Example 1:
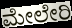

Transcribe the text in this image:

ಮೇಲೇರಿ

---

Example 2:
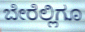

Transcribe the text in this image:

ಬೇರೆಲ್ಲಿಗೂ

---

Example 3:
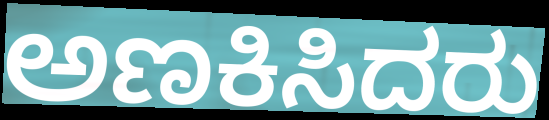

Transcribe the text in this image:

ಅಣಕಿಸಿದರು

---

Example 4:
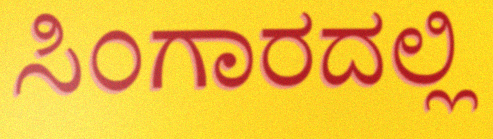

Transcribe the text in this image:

ಸಿಂಗಾರದಲ್ಲಿ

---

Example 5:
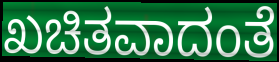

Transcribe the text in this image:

ಖಚಿತವಾದಂತೆ